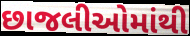
છાજલીઓમાંથી